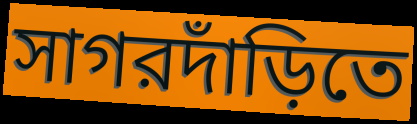
সাগরদাঁড়িতে